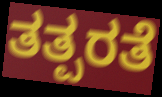
ತತ್ಪರತೆ